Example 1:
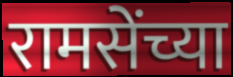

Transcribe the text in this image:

रामसेंच्या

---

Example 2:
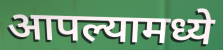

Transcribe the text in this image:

आपल्यामध्ये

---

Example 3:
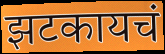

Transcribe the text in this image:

झटकायचं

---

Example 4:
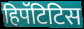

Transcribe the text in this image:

हिपॅटिटिस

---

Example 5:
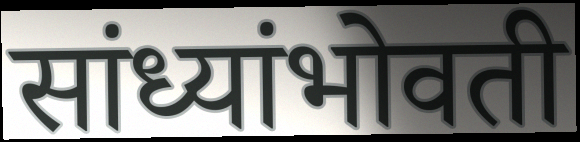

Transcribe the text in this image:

सांध्यांभोवती